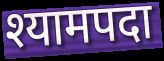
श्यामपदा